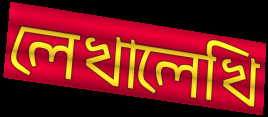
লেখালেখি